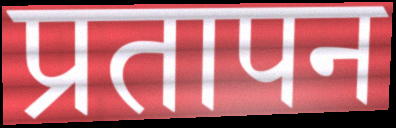
प्रतापन